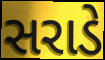
સરાડે